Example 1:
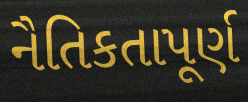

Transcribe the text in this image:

નૈતિકતાપૂર્ણ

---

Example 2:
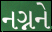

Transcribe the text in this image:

નગ્નને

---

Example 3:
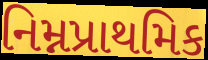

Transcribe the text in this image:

નિમ્નપ્રાથમિક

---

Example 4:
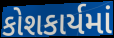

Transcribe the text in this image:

કોશકાર્યમાં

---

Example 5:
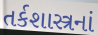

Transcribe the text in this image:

તર્કશાસ્ત્રનાં